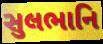
સુલભાનિ